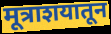
मूत्राशयातून